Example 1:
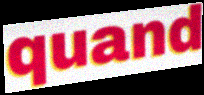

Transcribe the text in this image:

quand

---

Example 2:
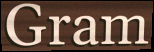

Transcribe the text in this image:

Gram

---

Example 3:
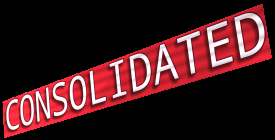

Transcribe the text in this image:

CONSOLIDATED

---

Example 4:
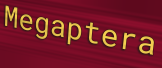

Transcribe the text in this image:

Megaptera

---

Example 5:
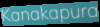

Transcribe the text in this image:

Kanakapura